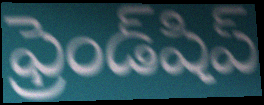
ఫ్రెండ్‌షిప్